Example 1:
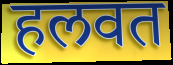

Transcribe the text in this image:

हलवत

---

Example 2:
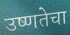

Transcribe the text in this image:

उष्णतेचा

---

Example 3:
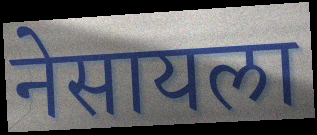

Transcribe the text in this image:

नेसायला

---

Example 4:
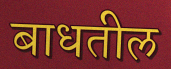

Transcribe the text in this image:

बाधतील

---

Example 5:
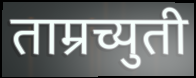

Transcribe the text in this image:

ताम्रच्युती